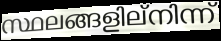
സ്ഥലങ്ങളില്നിന്ന്